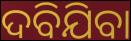
ଦବିଯିବା